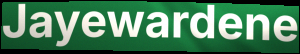
Jayewardene